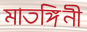
মাতঙ্গিনী